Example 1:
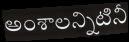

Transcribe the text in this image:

అంశాలన్నిటినీ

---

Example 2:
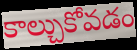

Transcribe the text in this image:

కాల్చుకోవడం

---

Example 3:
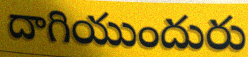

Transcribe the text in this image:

దాగియుందురు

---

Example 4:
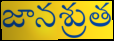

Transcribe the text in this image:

జానశ్రుత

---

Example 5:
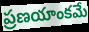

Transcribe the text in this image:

ప్రణయాంకమే